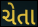
ચેતા